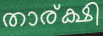
താര്ക്ഷി